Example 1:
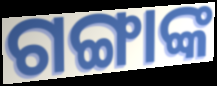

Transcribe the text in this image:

ଗଙ୍ଗାଙ୍କ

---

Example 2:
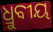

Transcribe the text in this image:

ଧ୍ରୁବୀୟ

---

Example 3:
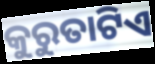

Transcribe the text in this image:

କୁରୁତାଟିଏ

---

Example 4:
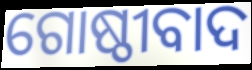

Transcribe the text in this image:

ଗୋଷ୍ଠୀବାଦ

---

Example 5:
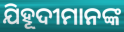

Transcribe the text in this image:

ଯିହୂଦୀମାନଙ୍କ